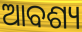
ଆବଶ୍ୟ